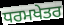
ਧਰਮਖੇਤਰ